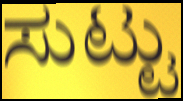
ಸುಟ್ಟು